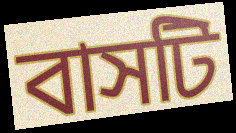
বাসটি